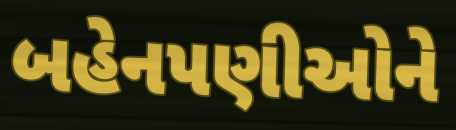
બહેનપણીઓને